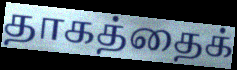
தாகத்தைக்